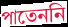
পাতেননি